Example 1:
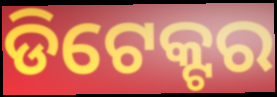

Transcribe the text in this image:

ଡିଟେକ୍ଟର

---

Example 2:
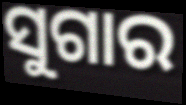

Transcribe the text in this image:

ସୁଗାର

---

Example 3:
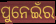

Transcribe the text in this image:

ପୁନେଇଁର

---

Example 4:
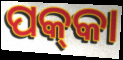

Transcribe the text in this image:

ପକ୍‌କା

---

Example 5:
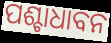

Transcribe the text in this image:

ପଶ୍ଚାଧାବନ